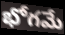
భోగమే